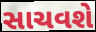
સાચવશે